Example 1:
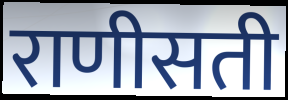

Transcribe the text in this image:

राणीसती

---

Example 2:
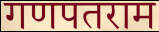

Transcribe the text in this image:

गणपतराम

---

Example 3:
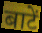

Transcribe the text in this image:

बाटें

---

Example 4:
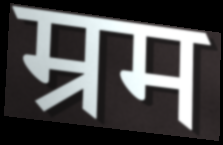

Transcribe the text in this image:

म्रम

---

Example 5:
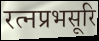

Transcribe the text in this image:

रत्नप्रभसूरि